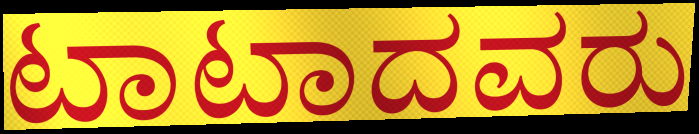
ಟಾಟಾದವರು